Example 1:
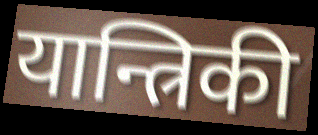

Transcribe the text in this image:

यान्त्रिकी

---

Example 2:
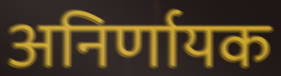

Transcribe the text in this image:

अनिर्णायक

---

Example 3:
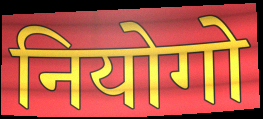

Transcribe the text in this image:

नियोगो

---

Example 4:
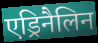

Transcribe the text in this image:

एड्रिनैलिन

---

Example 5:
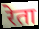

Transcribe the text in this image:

रेता